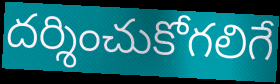
దర్శించుకోగలిగే